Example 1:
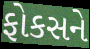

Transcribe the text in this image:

ફોકસને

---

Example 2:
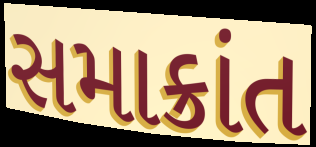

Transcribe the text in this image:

સમાક્રાંત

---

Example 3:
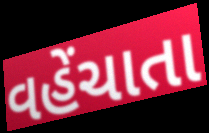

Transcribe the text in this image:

વહેંચાતા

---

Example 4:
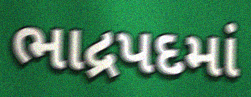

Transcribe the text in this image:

ભાદ્રપદમાં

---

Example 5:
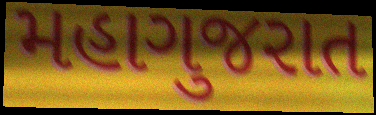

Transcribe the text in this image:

મહાગુજરાત